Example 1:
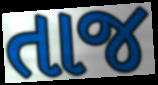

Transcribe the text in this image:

તાજ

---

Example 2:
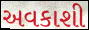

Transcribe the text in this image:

અવકાશી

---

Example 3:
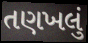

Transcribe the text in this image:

તણખલું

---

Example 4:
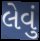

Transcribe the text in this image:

લેવું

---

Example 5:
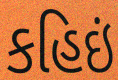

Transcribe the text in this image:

કહિઇં